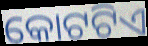
କୋଟଟିଏ